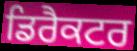
ਡਿਰੈਕਟਰ